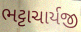
ભટ્ટાચાર્યજી